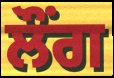
ਲੌਂਗ